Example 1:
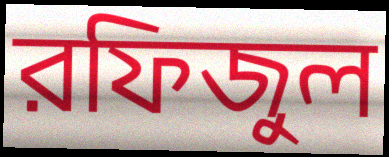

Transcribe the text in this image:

রফিজুল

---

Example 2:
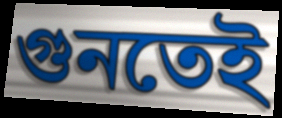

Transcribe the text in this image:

গুনতেই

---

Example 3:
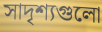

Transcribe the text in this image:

সাদৃশ্যগুলো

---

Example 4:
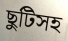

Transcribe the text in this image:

ছুটিসহ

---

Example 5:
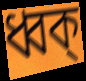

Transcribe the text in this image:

ধ্বক্